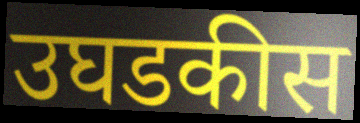
उघडकीस